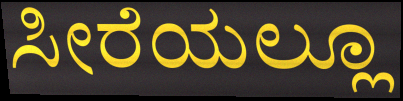
ಸೀರೆಯಲ್ಲೂ